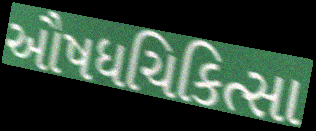
ઔષધચિકિત્સા